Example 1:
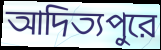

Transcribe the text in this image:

আদিত্যপুরে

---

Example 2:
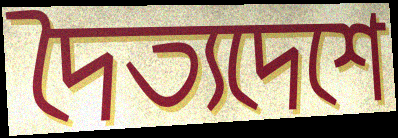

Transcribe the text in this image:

দৈত্যদেশে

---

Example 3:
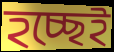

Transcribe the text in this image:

হচ্ছেই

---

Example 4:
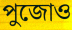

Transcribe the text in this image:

পুজোও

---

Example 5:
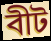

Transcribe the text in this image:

বীট